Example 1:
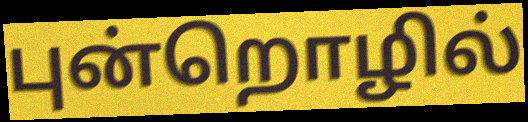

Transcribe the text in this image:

புன்றொழில்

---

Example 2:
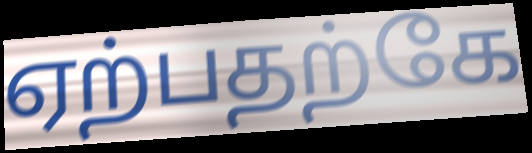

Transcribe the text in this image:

ஏற்பதற்கே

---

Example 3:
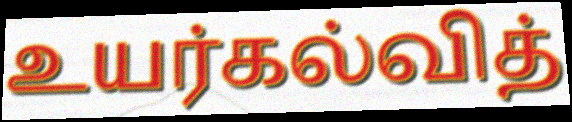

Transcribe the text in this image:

உயர்கல்வித்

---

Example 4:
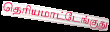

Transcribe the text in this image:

தெரியமாட்டேங்குது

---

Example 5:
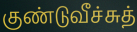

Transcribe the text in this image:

குண்டுவீச்சுத்